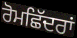
ਰੋਮਛਿੱਦਰਾਂ